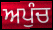
ਅਪੁੰਚ